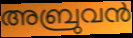
അബ്രുവൻ